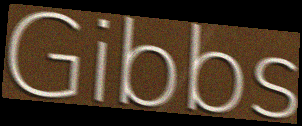
Gibbs